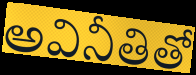
అవినీతితో